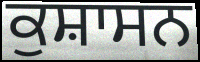
ਕੁਸ਼ਾਸਨ